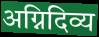
अग्निदिव्य